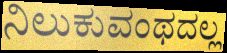
ನಿಲುಕುವಂಥದಲ್ಲ